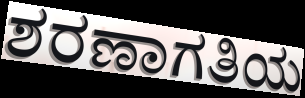
ಶರಣಾಗತಿಯ